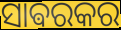
ସାଵରକର